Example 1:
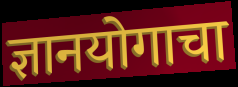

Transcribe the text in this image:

ज्ञानयोगाचा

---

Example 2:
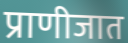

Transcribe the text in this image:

प्राणीजात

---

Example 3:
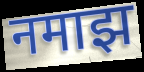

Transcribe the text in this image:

नमाझ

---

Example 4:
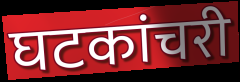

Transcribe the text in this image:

घटकांचरी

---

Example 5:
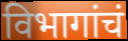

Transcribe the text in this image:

विभागांचं